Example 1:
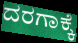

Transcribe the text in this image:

ದರಗಾಕ್ಕೆ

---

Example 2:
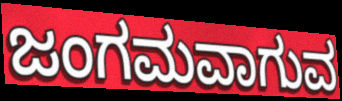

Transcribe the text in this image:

ಜಂಗಮವಾಗುವ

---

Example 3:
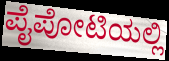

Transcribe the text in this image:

ಪೈಪೋಟಿಯಲ್ಲಿ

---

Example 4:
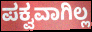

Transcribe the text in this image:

ಪಕ್ವವಾಗಿಲ್ಲ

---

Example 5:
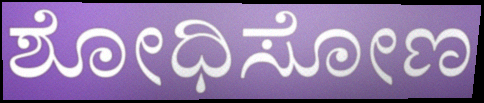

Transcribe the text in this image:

ಶೋಧಿಸೋಣ